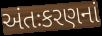
અંતઃકરણનાં